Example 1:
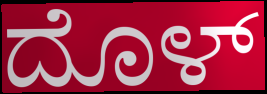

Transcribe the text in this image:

ದೊಳ್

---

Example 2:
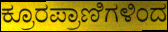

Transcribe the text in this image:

ಕ್ರೂರಪ್ರಾಣಿಗಳಿಂದ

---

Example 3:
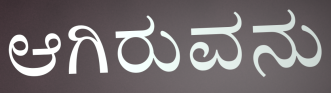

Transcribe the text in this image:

ಆಗಿರುವನು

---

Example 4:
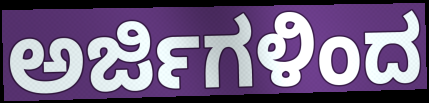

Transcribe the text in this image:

ಅರ್ಜಿಗಳಿಂದ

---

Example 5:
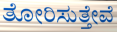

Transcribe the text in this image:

ತೋರಿಸುತ್ತೇವೆ